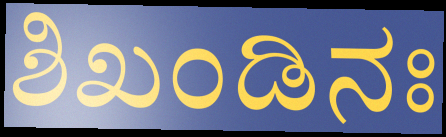
ಶಿಖಂಡಿನಃ